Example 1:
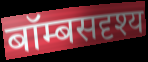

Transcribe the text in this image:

बॉम्बसदृश्य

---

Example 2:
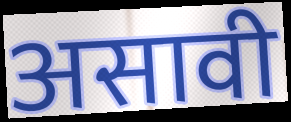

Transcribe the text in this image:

असावी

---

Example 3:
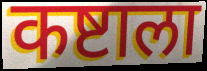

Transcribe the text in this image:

कष्टाला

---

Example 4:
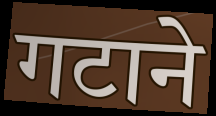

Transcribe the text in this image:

गटाने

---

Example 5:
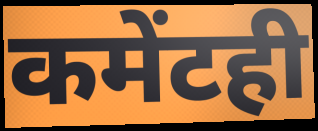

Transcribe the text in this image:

कमेंटही